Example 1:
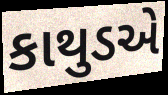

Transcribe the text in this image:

કાથુડએ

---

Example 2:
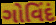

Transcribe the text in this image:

ગોવિંદં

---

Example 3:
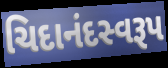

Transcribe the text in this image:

ચિદાનંદસ્વરૂપ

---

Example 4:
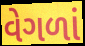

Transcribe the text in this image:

વેગળાં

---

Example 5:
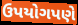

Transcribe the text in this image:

ઉપયોગપણે